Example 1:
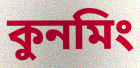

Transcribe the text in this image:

কুনমিং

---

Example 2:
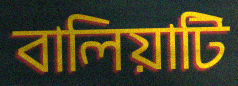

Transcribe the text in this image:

বালিয়াটি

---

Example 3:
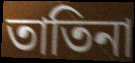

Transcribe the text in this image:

তাতিনা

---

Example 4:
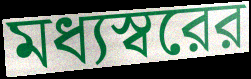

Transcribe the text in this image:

মধ্যস্বরের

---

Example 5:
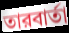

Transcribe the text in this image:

তারবার্তা